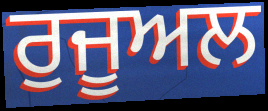
ਰੁਜੂਅਲ